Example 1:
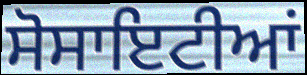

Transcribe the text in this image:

ਸੋਸਾਇਟੀਆਂ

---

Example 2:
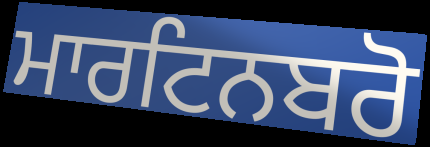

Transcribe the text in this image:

ਮਾਰਟਿਨਬਰੋ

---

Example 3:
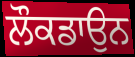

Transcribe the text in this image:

ਲੌਕਡਾਉਨ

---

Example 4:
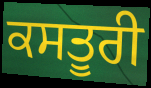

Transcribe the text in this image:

ਕਸਤੂਰੀ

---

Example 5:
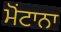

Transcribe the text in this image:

ਮੋਂਟਾਨਾ